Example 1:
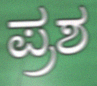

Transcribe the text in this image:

ಪ್ರಶ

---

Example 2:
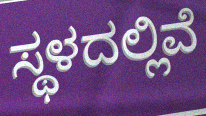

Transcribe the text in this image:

ಸ್ಥಳದಲ್ಲಿವೆ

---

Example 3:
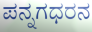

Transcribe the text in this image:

ಪನ್ನಗಧರನ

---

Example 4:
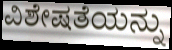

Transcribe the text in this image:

ವಿಶೇಷತೆಯನ್ನು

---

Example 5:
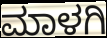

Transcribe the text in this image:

ಮಾಳಗಿ